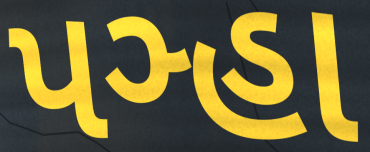
પઞ્હા